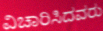
ವಿಚಾರಿಸಿದವರು